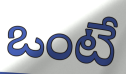
ఒంటే